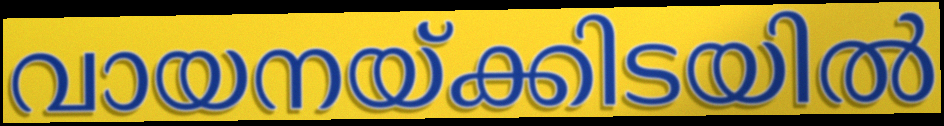
വായനയ്ക്കിടയിൽ